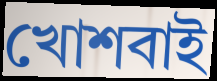
খোশবাই